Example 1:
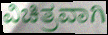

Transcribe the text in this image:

ವಿಚಿತ್ರವಾಗಿ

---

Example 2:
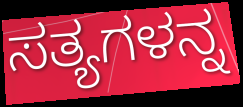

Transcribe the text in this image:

ಸತ್ಯಗಳನ್ನ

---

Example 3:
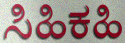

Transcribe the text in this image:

ಸಿಹಿಕಹಿ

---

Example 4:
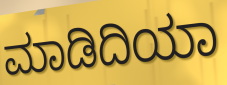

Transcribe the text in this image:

ಮಾಡಿದಿಯಾ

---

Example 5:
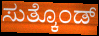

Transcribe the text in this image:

ಸುತ್ಕೊಂಡ್